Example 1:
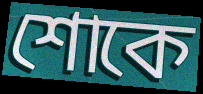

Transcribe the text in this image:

শোকে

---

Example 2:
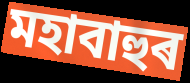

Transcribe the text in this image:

মহাবাহুৰ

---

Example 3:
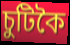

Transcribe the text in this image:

চুটিকৈ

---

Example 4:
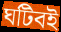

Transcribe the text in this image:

ঘটিবই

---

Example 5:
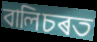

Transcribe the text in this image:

বালিচৰত